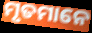
ମୃତମାନେ